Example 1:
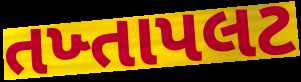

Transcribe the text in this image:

તખ્તાપલટ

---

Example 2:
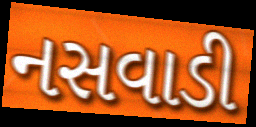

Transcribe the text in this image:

નસવાડી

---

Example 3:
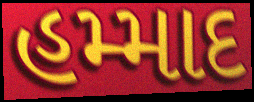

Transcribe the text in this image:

હમ્માદ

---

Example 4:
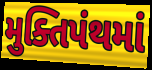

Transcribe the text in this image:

મુક્તિપંથમાં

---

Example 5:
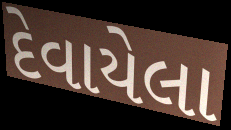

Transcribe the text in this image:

દેવાયેલા